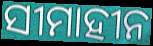
ସୀମାହୀନ